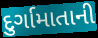
દુર્ગામાતાની